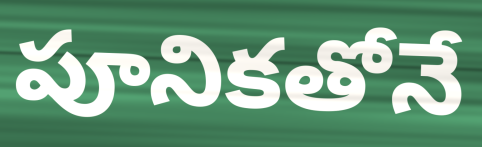
పూనికతోనే